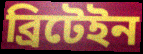
ব্ৰিটেইন